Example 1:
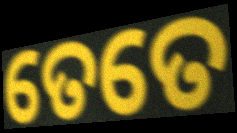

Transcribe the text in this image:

ତେତେ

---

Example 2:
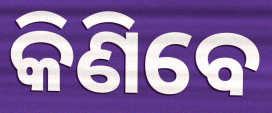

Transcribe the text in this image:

କିଣିବେ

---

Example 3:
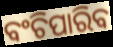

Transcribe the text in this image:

ବଂଚିପାରିବ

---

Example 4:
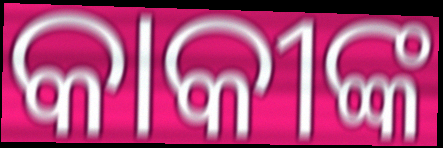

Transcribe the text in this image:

କାକୀଙ୍କ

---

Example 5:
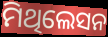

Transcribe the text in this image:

ମିଥିଲେସନ